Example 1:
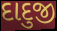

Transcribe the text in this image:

દાદુજી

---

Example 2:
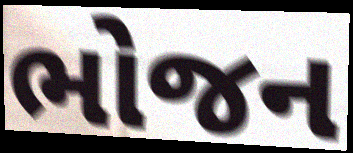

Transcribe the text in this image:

ભોજન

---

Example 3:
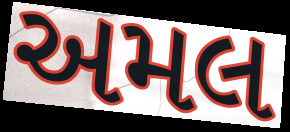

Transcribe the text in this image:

અમલ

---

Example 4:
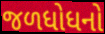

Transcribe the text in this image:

જળધોધનો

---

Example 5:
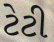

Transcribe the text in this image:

ટેટી